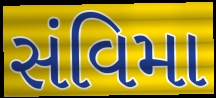
સંવિમા